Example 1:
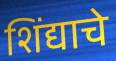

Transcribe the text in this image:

शिंद्याचे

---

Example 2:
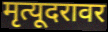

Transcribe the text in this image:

मृत्यूदरावर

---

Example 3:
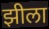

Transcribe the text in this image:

झीला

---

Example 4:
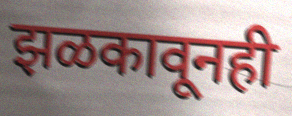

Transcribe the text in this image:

झळकावूनही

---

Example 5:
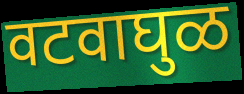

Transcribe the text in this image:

वटवाघुळ